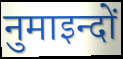
नुमाइन्दों